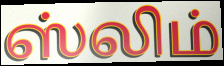
ஸ்லிம்